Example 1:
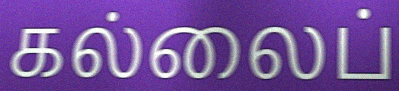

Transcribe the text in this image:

கல்லைப்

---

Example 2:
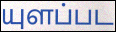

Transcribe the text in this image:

யுளப்பட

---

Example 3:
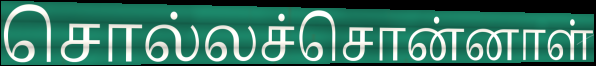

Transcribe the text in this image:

சொல்லச்சொன்னாள்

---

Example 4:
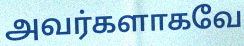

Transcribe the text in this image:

அவர்களாகவே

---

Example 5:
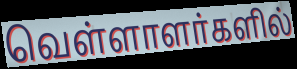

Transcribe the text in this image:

வெள்ளாளர்களில்